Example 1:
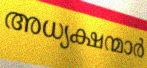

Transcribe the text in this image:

അധ്യക്ഷന്മാർ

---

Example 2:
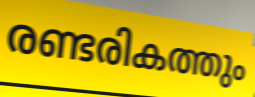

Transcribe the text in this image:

രണ്ടരികത്തും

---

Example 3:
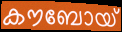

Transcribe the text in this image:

കൗബോയ്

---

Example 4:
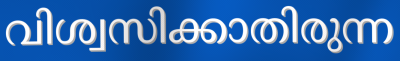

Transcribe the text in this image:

വിശ്വസിക്കാതിരുന്ന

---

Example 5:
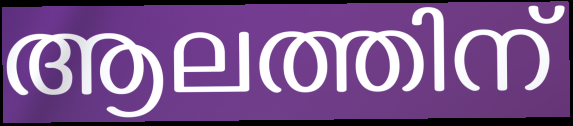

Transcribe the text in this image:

ആലത്തിന്